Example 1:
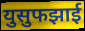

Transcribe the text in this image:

युसुफझाई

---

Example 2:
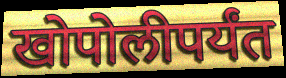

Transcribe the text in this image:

खोपोलीपर्यंत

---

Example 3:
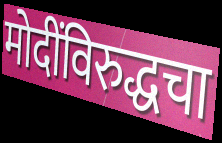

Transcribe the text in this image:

मोदींविरुद्धचा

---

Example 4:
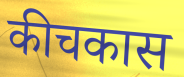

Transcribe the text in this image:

कीचकास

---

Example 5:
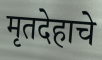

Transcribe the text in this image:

मृतदेहाचे